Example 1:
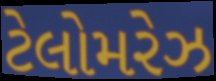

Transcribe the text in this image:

ટેલોમરેઝ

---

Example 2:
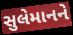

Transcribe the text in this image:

સુલેમાનને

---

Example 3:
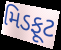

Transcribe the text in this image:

મિડફૂટ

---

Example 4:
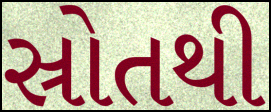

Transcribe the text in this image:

સ્રોતથી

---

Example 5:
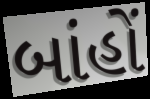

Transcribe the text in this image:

બાંહોં